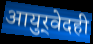
आयुर्वेदही